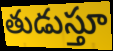
తుడుస్తూ